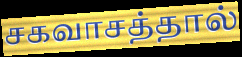
சகவாசத்தால்